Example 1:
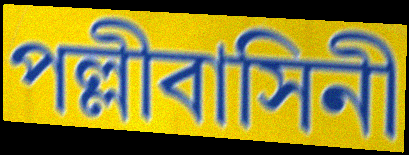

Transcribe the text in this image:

পল্লীবাসিনী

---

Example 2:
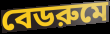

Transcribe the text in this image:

বেডরুমে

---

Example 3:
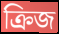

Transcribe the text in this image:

ক্রিজ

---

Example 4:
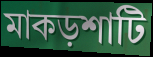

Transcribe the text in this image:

মাকড়শাটি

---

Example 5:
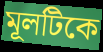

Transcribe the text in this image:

মূলটিকে